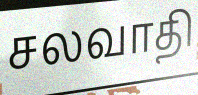
சலவாதி